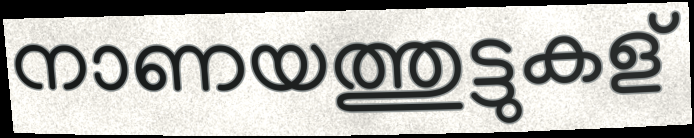
നാണയത്തുട്ടുകള്